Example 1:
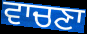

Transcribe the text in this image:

ਵਾਚਣਾ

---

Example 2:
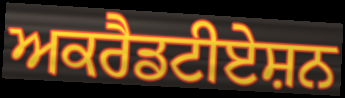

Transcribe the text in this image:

ਅਕਰੈਡਟੀਏਸ਼ਨ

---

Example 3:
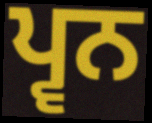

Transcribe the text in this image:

ਪ੍ਵਨ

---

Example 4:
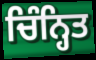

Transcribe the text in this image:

ਚਿੰਨ੍ਹਿਤ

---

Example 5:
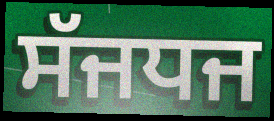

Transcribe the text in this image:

ਸੱਜਧਜ